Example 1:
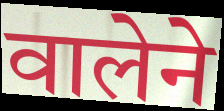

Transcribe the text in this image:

वालेने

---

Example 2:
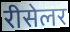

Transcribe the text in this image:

रीसेलर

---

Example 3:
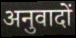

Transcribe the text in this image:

अनुवादों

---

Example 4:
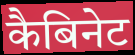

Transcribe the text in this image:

कैबिनेट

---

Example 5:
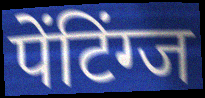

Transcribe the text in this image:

पेंटिंग्ज